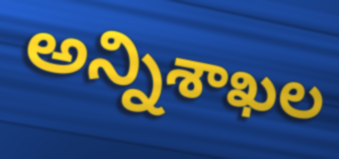
అన్నిశాఖల